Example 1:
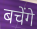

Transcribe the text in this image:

बचेंगे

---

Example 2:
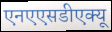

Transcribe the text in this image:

एनएएसडीएक्यू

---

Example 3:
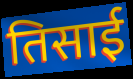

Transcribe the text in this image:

तिसाई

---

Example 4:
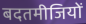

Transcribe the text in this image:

बदतमीजियों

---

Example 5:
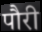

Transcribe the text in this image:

पौरी